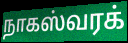
நாகஸ்வரக்